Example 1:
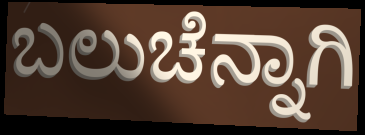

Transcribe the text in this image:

ಬಲುಚೆನ್ನಾಗಿ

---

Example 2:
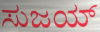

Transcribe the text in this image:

ಸುಜಯ್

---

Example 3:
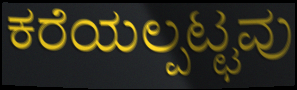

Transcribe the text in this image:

ಕರೆಯಲ್ಪಟ್ಟವು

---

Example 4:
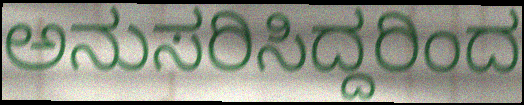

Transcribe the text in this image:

ಅನುಸರಿಸಿದ್ದರಿಂದ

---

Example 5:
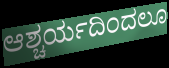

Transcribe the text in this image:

ಆಶ್ಚರ್ಯದಿಂದಲೂ